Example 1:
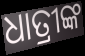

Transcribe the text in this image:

ଧାତ୍ରୀଙ୍କ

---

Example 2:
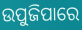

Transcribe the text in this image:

ଉପୁଜିପାରେ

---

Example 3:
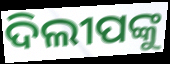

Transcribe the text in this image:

ଦିଲୀପଙ୍କୁ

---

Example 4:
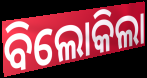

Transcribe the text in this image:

ବିଲୋକିଲା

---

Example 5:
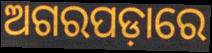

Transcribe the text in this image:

ଅଗରପଡ଼ାରେ